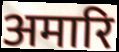
अमारि